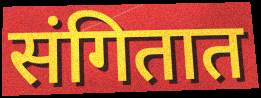
संगितात